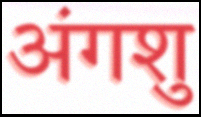
अंगशु